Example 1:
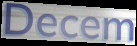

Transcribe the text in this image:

Decem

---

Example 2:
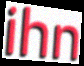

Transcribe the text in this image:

ihn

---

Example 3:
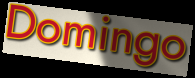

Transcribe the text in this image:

Domingo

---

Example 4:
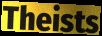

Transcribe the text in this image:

Theists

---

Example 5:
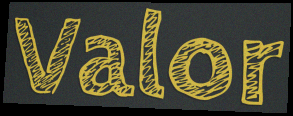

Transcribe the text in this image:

Valor